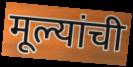
मूल्यांची